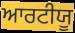
ਆਰਟੀਯੂ